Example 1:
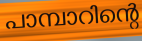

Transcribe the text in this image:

പാമ്പാറിന്റെ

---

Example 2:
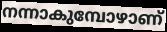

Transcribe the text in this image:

നന്നാകുമ്പോഴാണ്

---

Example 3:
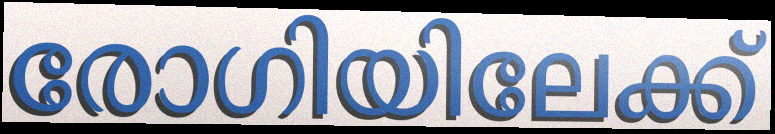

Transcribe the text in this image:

രോഗിയിലേക്ക്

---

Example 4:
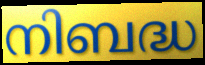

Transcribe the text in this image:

നിബദ്ധ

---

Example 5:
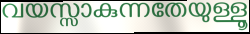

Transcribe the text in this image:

വയസ്സാകുന്നതേയുള്ളൂ